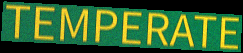
TEMPERATE